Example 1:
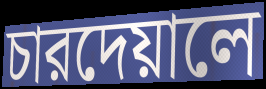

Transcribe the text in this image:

চারদেয়ালে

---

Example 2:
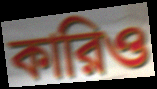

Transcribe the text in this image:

কারিও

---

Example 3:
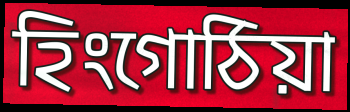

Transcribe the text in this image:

হিংগোঠিয়া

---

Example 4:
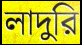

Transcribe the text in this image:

লাদুরি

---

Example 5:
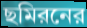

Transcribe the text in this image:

ছমিরনের